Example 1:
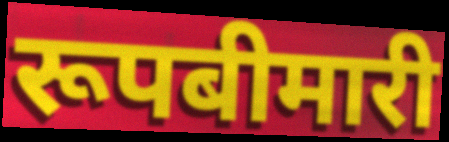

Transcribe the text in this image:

रूपबीमारी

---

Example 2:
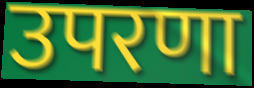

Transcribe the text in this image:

उपरणा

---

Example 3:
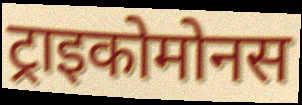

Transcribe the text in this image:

ट्राइकोमोनस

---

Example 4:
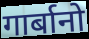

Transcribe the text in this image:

गार्बानो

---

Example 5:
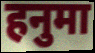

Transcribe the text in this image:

हनुमा